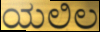
ಯಲಿಲ